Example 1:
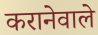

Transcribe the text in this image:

करानेवाले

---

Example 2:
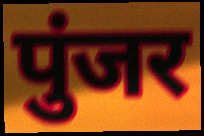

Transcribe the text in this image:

पुंजर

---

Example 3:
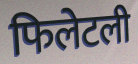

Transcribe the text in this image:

फिलेटली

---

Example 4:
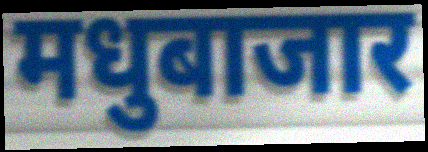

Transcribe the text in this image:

मधुबाजार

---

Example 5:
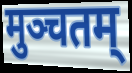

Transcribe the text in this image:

मुञ्चतम्